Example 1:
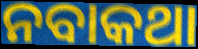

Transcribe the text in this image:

ନବାକଥା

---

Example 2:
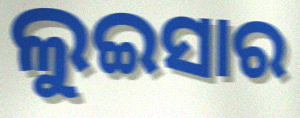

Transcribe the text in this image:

ଲୁଇସାର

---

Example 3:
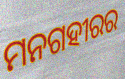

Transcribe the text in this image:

ମନଗହୀରର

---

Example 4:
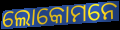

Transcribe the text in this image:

ଲୋକୋମନେ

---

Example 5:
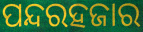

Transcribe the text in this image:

ପନ୍ଦରହଜାର